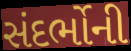
સંદર્ભોની